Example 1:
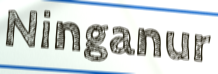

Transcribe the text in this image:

Ninganur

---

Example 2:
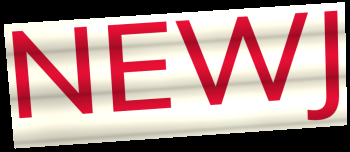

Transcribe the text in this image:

NEWJ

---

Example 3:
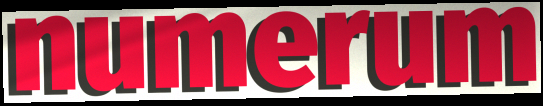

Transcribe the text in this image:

numerum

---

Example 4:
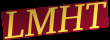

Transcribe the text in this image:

LMHT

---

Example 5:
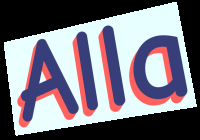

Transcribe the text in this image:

Alla